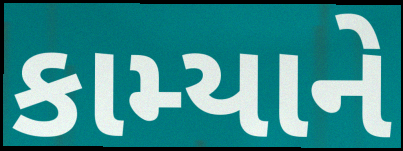
કામ્યાને